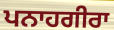
ਪਨਾਹਗੀਰਾ